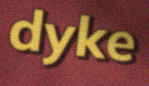
dyke